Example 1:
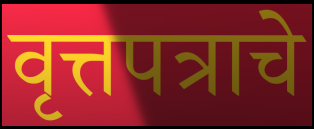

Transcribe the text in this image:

वृत्तपत्राचे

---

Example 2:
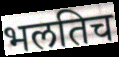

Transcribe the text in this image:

भलतिच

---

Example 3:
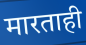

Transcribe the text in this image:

मारताही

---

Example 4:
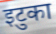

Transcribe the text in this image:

इटुका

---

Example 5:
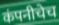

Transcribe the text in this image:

कंपनीचेच